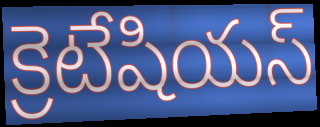
క్రెటేషియస్